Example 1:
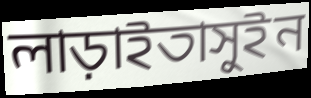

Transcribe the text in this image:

লাড়াইতাসুইন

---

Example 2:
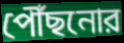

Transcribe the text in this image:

পৌঁছনোর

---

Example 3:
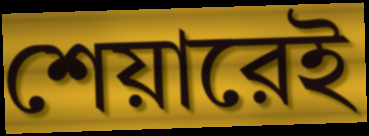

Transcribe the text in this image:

শেয়ারেই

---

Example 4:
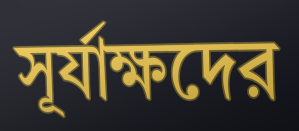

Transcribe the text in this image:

সূর্যাক্ষদের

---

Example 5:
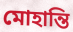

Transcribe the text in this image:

মোহান্তি